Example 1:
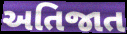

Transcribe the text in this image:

અતિજાત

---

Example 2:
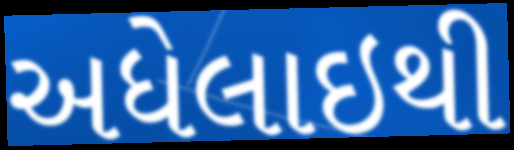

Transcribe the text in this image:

અધેલાઇથી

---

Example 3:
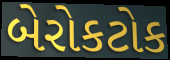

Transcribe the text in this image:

બેરોકટોક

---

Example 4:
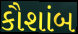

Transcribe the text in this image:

કૌશાંબ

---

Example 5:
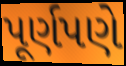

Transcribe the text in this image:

પૂર્ણપણે